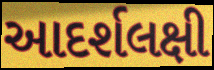
આદર્શલક્ષી